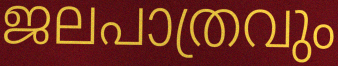
ജലപാത്രവും